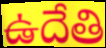
ఉదేతి